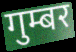
गुम्बर